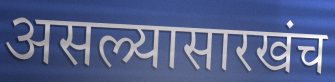
असल्यासारखंच